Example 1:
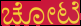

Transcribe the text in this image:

ಚೋಟೆ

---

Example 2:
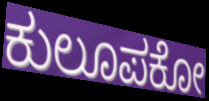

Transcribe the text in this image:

ಕುಲೂಪಕೋ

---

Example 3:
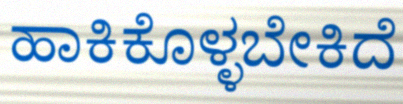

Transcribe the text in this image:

ಹಾಕಿಕೊಳ್ಳಬೇಕಿದೆ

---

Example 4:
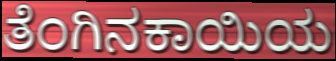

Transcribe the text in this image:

ತೆಂಗಿನಕಾಯಿಯ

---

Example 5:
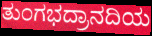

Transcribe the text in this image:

ತುಂಗಭದ್ರಾನದಿಯ